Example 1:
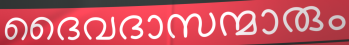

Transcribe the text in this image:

ദൈവദാസന്മാരും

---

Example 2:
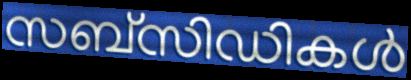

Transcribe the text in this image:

സബ്സിഡികൾ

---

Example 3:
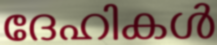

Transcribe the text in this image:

ദേഹികൾ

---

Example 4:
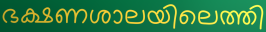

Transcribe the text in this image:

ഭക്ഷണശാലയിലെത്തി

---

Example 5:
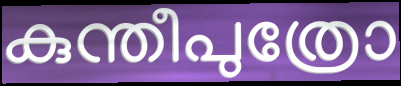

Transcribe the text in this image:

കുന്തീപുത്രോ